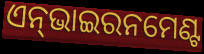
ଏନ୍‌ଭାଇରନମେଣ୍ଟ